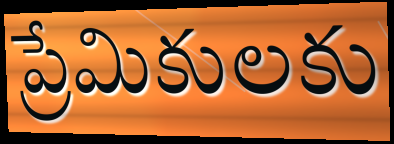
ప్రేమికులకు